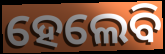
ହେଲେବି